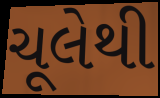
ચૂલેથી